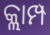
କ୍ଲାମ୍ପ